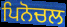
ਪਿਨੋਚਲ